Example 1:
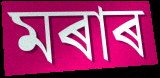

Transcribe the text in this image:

মৰাৰ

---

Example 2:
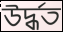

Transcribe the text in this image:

উৰ্দ্ধত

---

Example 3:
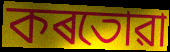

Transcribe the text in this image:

কৰতোৱা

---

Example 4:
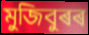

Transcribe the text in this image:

মুজিবুৰৰ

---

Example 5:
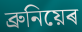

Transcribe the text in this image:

ব্ৰুনিয়েৰ